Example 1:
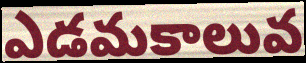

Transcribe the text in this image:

ఎడమకాలువ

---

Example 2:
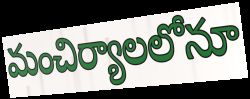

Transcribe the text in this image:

మంచిర్యాలలోనూ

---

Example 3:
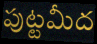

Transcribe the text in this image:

పుట్టమీద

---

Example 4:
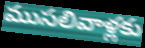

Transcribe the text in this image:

ముసలివాళ్లకు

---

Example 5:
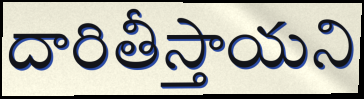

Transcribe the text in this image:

దారితీస్తాయని